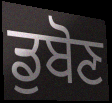
ਡੁਬੋਣ